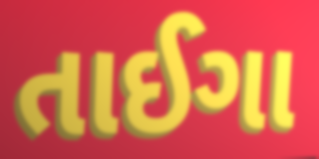
તાઈગા